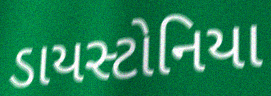
ડાયસ્ટોનિયા